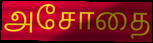
அசோதை